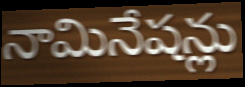
నామినేషన్లు